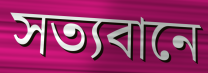
সত্যবানে